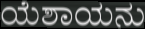
ಯೆಶಾಯನು